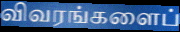
விவரங்களைப்